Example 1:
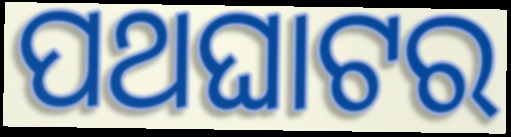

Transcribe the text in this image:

ପଥଘାଟର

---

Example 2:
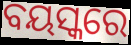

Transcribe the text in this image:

ବୟସ୍କରେ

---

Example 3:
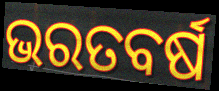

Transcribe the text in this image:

ଭରତବର୍ଷ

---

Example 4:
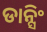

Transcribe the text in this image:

ଡାନ୍ସିଂ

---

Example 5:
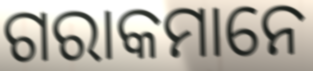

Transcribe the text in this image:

ଗରାକମାନେ